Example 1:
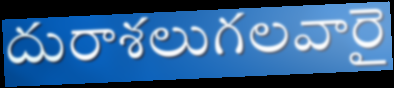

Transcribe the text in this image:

దురాశలుగలవారై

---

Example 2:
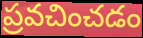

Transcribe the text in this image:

ప్రవచించడం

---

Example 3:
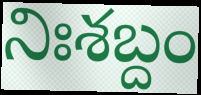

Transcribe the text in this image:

నిఃశబ్దం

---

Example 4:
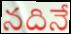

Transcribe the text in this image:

నదినే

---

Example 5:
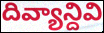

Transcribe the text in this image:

దివ్యాన్దివి